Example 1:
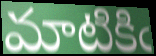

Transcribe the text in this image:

మాటికిఁ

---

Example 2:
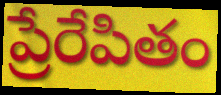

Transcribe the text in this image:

ప్రేరేపితం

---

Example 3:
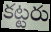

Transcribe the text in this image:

కట్టరు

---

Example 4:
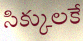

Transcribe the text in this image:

సిక్కులకే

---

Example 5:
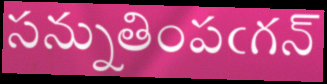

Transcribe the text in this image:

సన్నుతింపఁగన్